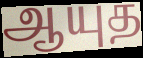
ஆயுத